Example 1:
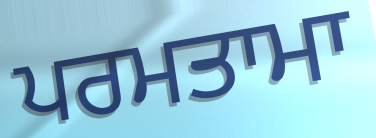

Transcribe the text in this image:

ਪਰਮਤਾਮਾ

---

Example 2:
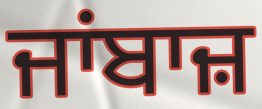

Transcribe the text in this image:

ਜਾਂਬਾਜ਼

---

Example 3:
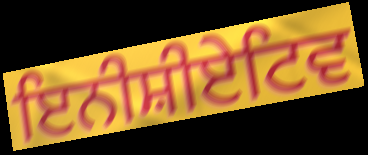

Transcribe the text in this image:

ਇਨੀਸ਼ੀਏਟਿਵ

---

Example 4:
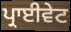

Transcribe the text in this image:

ਪ੍ਰਾਈਵੇਟ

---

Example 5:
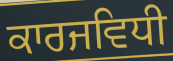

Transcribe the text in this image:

ਕਾਰਜਵਿਧੀ